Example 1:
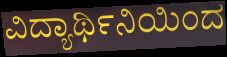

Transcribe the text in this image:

ವಿದ್ಯಾರ್ಥಿನಿಯಿಂದ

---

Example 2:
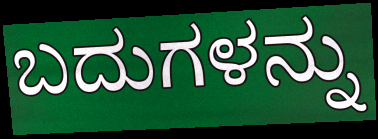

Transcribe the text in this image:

ಬದುಗಳನ್ನು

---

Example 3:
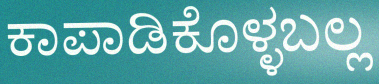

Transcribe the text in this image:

ಕಾಪಾಡಿಕೊಳ್ಳಬಲ್ಲ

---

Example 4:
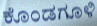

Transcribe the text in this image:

ಕೊಂಡಗೂಳಿ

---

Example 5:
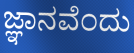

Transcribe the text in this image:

ಜ್ಞಾನವೆಂದು